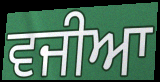
ਵਜੀਆ